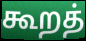
கூறத்